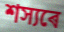
শস্যৰে